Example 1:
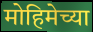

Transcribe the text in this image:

मोहिमेच्या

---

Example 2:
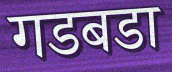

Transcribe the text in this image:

गडबडा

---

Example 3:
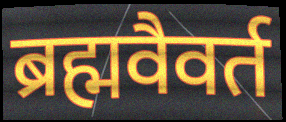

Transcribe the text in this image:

ब्रह्मवैवर्त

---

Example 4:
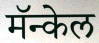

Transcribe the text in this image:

मॅन्केल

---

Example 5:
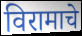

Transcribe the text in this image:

विरामाचे